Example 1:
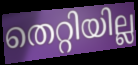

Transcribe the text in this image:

തെറ്റിയില്ല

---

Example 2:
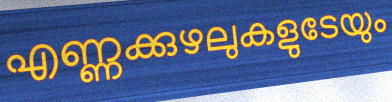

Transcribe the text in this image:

എണ്ണക്കുഴലുകളുടേയും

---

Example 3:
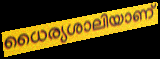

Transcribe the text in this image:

ധൈര്യശാലിയാണ്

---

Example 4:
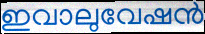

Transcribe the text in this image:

ഇവാലുവേഷൻ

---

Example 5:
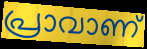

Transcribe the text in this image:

പ്രാവാണ്